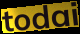
todai